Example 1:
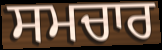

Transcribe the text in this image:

ਸਮਚਾਰ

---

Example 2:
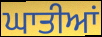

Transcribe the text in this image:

ਘਾਤੀਆਂ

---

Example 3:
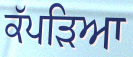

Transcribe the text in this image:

ਕੱਪੜਿਆ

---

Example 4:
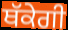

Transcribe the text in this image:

ਥੱਕੇਗੀ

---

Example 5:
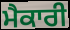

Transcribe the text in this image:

ਮੈਕਾਰੀ